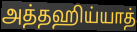
அத்தஹிய்யாத்